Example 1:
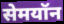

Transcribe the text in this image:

सेमयॉन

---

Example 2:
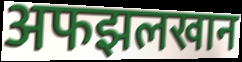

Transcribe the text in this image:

अफझलखान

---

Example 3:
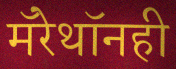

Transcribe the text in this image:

मॅरेथॉनही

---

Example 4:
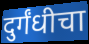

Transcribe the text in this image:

दुर्गंधीचा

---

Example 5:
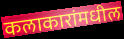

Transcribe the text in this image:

कलाकारांमधील